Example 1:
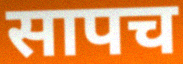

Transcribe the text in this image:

सापच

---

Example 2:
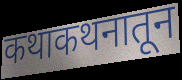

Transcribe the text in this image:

कथाकथनातून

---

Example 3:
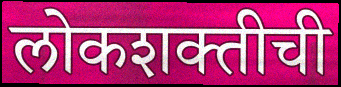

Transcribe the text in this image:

लोकशक्तीची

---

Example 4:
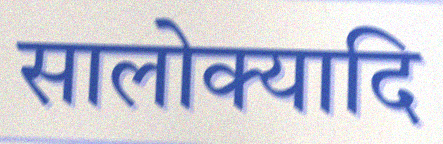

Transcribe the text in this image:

सालोक्यादि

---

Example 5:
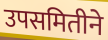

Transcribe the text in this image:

उपसमितीने